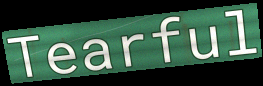
Tearful